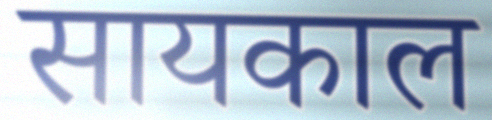
सायकाल